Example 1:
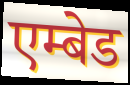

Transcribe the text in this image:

एम्बेड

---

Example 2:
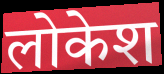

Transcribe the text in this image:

लोकेश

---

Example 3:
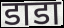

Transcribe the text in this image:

डाडा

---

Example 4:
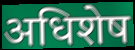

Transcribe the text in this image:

अधिशेष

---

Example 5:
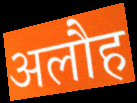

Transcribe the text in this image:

अलौह